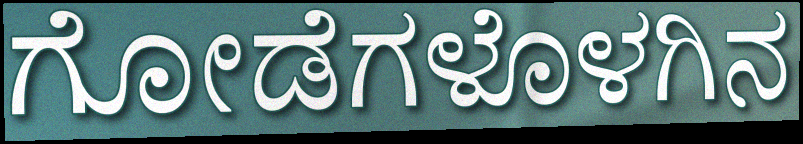
ಗೋಡೆಗಳೊಳಗಿನ